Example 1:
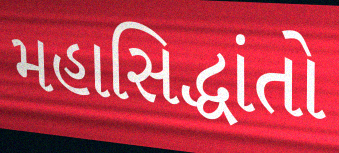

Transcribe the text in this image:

મહાસિદ્ધાંતો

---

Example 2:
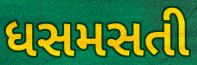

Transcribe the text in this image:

ધસમસતી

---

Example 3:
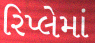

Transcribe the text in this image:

રિપ્લેમાં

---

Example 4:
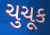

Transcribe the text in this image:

ચુચૂક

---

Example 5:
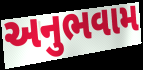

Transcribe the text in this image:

અનુભવામ